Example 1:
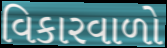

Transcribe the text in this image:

વિકારવાળો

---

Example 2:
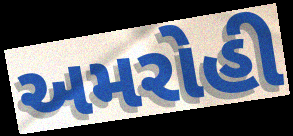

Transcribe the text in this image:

અમરોહી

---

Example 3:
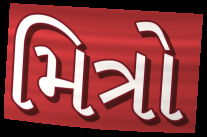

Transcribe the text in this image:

મિત્રો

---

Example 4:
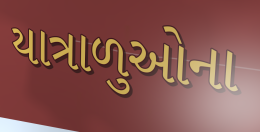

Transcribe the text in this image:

યાત્રાળુઓના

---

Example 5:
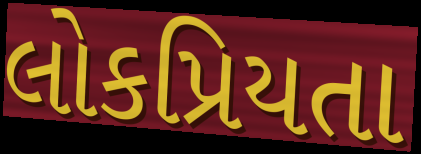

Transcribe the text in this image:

લોકપ્રિયતા